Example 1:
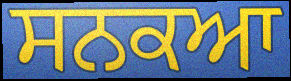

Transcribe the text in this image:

ਸਨਕਆ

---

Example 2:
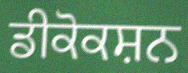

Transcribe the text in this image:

ਡੀਕੋਕਸ਼ਨ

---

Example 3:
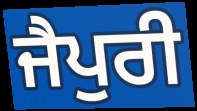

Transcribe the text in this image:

ਜੈਪੁਰੀ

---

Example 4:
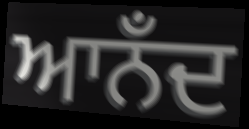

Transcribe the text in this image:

ਆਨਁਦ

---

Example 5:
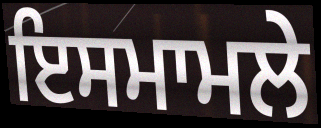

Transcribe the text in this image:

ਇਸਮਾਮਲੇ